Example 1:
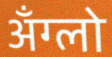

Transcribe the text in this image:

अँग्लो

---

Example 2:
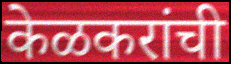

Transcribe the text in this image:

केळकरांची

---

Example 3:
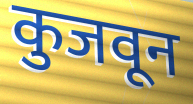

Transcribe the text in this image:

कुजवून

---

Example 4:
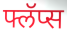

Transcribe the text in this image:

फ्लॅप्स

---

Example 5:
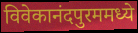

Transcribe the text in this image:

विवेकानंदपुरममध्ये